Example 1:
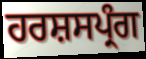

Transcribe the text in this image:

ਹਰਸ਼ਸਪ੍ਰੰਗ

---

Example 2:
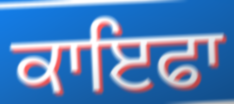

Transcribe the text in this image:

ਕਾਇਫਾ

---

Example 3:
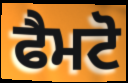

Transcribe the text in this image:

ਫੈਮਟੋ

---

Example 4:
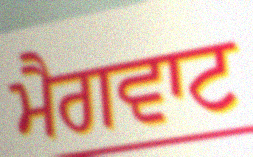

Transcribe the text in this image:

ਮੈਗਵਾਟ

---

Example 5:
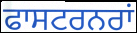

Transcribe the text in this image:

ਫਾਸਟਰਨਰਾਂ